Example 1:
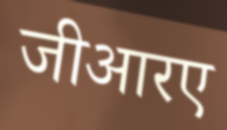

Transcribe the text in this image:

जीआरए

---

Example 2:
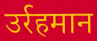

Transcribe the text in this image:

उर्रहमान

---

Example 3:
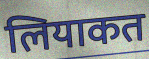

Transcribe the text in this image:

लियाकत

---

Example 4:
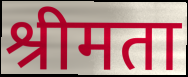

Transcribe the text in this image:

श्रीमता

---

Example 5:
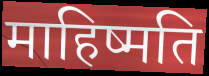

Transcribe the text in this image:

माहिष्मति